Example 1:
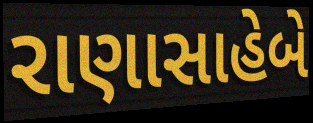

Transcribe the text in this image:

રાણાસાહેબે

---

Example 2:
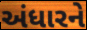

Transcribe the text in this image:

અંધારને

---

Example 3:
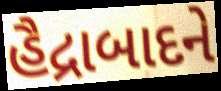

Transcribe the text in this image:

હૈદ્રાબાદને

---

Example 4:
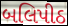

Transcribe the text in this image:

બલિપીઠ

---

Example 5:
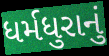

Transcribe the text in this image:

ધર્મધુરાનું